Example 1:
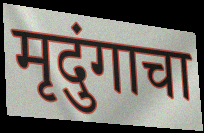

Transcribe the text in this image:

मृदुंगाचा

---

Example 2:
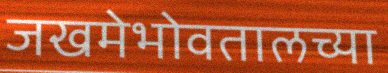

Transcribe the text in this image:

जखमेभोवतालच्या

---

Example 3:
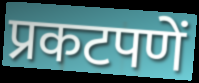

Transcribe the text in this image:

प्रकटपणें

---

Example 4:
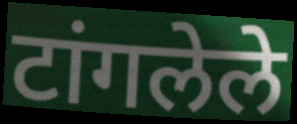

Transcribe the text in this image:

टांगलेले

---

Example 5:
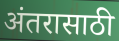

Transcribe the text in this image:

अंतरासाठी